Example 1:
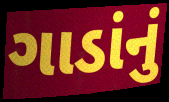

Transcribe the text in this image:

ગાડાંનું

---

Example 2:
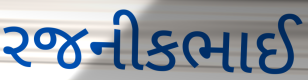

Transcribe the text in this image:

રજનીકભાઈ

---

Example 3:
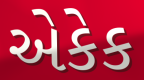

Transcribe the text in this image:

એકેક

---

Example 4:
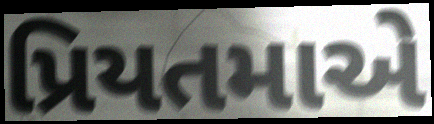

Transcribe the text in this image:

પ્રિયતમાએ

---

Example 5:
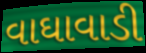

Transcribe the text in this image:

વાઘાવાડી